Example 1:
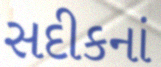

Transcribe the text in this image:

સદીકનાં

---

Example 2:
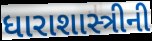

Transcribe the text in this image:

ધારાશાસ્ત્રીની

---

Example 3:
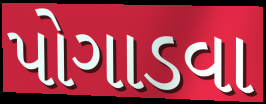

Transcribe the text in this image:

પોગાડવા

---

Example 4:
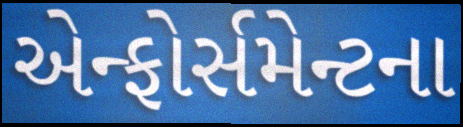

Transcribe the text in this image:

એન્ફોર્સમેન્ટના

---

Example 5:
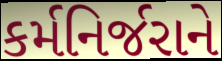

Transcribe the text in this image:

કર્મનિર્જરાને